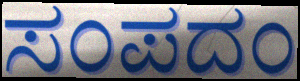
ಸಂಪದಂ